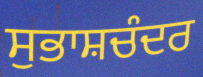
ਸੁਭਾਸ਼ਚੰਦਰ